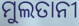
ମୁଲତାନୀ